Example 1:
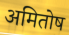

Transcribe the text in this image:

अमितोष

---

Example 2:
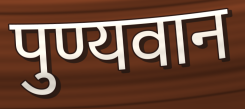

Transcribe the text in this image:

पुण्यवान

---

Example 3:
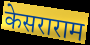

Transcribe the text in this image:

केसराराम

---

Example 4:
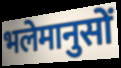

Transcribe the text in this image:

भलेमानुसों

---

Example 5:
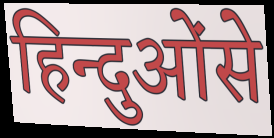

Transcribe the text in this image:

हिन्दुओंसे